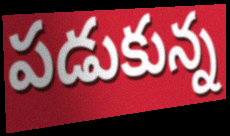
పడుకున్న